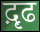
द़ृढ